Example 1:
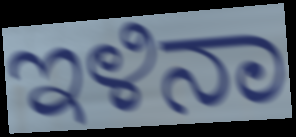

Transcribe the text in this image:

ಇಳಿನಾ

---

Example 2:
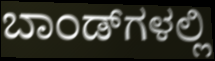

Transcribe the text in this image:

ಬಾಂಡ್‌ಗಳಲ್ಲಿ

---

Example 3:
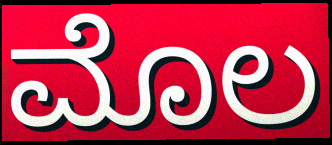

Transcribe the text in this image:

ಮೊಲ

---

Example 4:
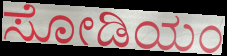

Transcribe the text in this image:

ಸೋಡಿಯಂ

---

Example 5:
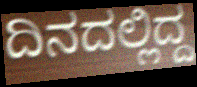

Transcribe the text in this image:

ದಿನದಲ್ಲಿದ್ದ